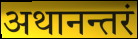
अथानन्तरं